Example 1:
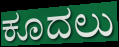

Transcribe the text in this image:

ಕೂದಲು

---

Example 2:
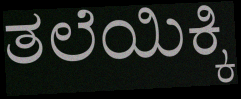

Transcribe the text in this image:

ತಲೆಯಿಕ್ಕಿ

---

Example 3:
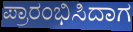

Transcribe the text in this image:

ಪ್ರಾರಂಭಿಸಿದಾಗ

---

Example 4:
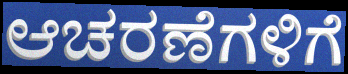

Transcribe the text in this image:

ಆಚರಣೆಗಳಿಗೆ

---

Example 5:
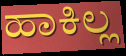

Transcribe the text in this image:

ಹಾಕಿಲ್ಲ